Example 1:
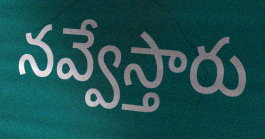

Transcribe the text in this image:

నవ్వేస్తారు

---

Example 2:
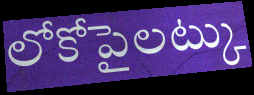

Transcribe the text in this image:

లోకోపైలట్కు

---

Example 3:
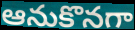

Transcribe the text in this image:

ఆనుకొనగా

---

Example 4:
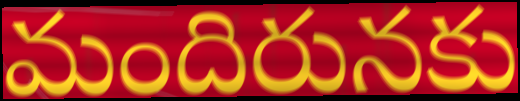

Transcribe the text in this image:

మందిరునకు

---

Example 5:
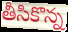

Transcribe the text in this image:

తీసికొన్న